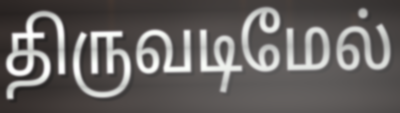
திருவடிமேல்